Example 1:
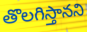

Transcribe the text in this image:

తొలగిస్తానని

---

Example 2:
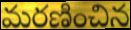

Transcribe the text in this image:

మరణించిన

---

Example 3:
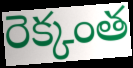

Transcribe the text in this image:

రెక్కంత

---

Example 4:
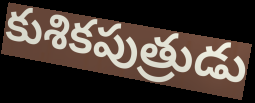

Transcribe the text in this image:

కుశికపుత్రుడు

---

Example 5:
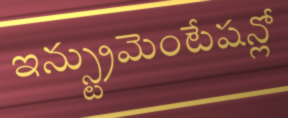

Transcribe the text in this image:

ఇన్స్ట్రుమెంటేషన్లో